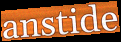
anstide